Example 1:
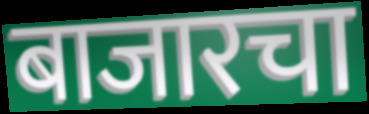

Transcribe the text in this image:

बाजारचा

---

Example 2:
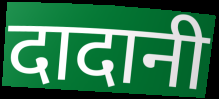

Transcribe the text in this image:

दादानी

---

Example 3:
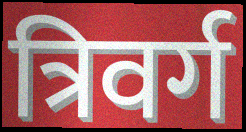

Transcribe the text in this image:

त्रिवर्ग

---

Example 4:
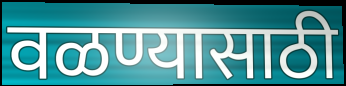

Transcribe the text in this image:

वळण्यासाठी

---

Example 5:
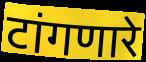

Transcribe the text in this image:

टांगणारे